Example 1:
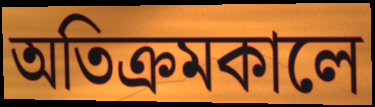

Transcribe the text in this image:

অতিক্রমকালে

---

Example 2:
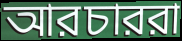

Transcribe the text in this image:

আরচাররা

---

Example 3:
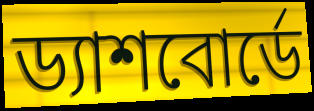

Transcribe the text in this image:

ড্যাশবোর্ডে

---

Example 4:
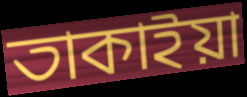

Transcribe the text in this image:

তাকাইয়া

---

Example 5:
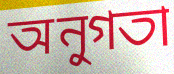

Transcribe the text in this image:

অনুগতা